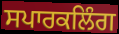
ਸਪਾਰਕਲਿੰਗ